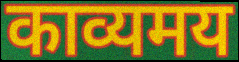
काव्यमय